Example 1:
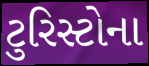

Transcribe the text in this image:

ટુરિસ્ટોના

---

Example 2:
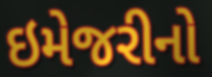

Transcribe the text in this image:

ઇમેજરીનો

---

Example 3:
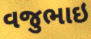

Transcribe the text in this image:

વજુભાઇ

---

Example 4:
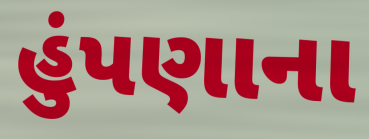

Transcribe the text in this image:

હુંપણાના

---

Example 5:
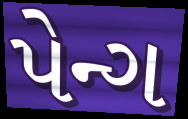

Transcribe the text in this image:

પેન્ગ